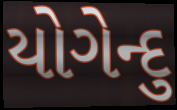
યોગેન્દુ